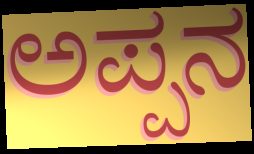
ಅಪ್ಪನ